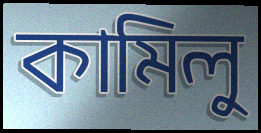
কামিলু